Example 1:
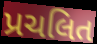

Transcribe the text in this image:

પ્રચલિત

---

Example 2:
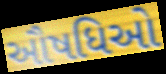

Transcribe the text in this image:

ઔષધિઓ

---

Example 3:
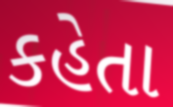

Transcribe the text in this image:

કહેતા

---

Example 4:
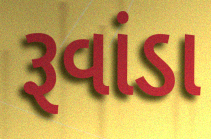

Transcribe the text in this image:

રૂવાંડા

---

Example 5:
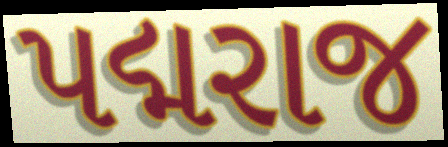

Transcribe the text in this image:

પદ્મરાજ